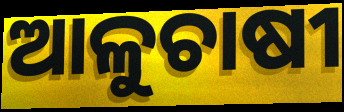
ଆଳୁଚାଷୀ